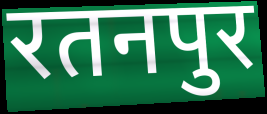
रतनपुर